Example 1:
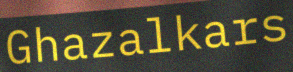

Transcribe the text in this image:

Ghazalkars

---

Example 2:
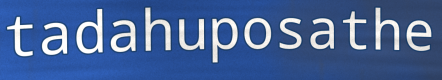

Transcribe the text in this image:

tadahuposathe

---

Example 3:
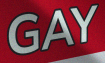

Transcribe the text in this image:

GAY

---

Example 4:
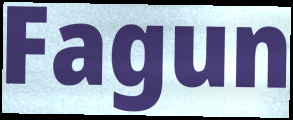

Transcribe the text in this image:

Fagun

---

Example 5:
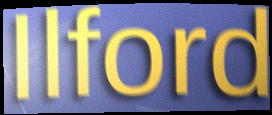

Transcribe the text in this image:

Ilford